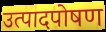
उत्पादपोषण